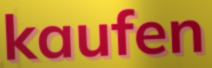
kaufen